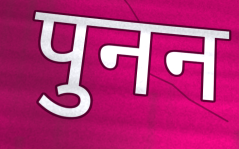
पुनन